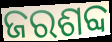
ଜରଶବ୍ଦ